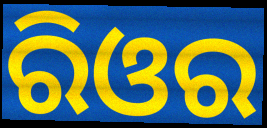
ରିଓର